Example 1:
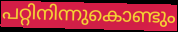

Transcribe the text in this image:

പറ്റിനിന്നുകൊണ്ടും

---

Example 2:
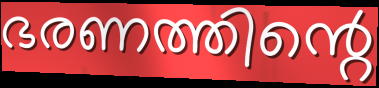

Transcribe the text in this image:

ഭരണത്തിന്റെ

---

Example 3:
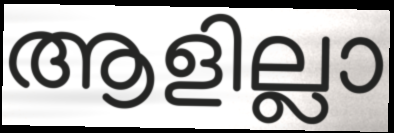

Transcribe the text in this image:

ആളില്ലാ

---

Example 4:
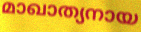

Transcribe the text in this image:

മാഖാത്യനായ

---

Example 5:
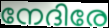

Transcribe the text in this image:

നേദിരേ